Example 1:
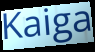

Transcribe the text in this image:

Kaiga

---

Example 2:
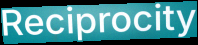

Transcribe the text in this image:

Reciprocity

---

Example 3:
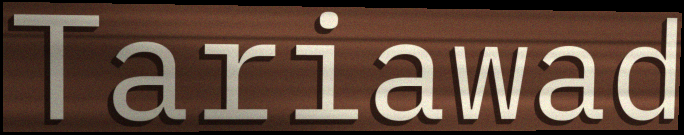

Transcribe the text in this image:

Tariawad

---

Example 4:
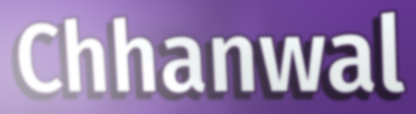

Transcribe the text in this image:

Chhanwal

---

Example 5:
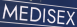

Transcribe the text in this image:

MEDISEX